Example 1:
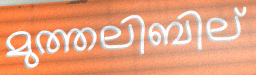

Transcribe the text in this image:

മുത്തലിബില്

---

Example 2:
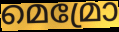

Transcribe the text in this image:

മെമ്രോ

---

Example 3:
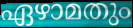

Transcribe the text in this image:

ഏഴാമതും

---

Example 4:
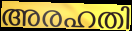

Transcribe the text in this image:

അരഹതി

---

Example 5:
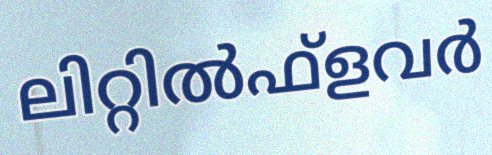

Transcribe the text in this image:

ലിറ്റിൽഫ്ളവർ